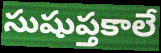
సుషుప్తకాలే